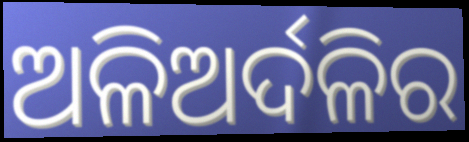
ଅଳିଅର୍ଦଳିର